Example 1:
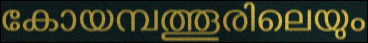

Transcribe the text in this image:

കോയമ്പത്തൂരിലെയും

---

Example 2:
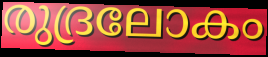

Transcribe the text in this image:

രുദ്രലോകം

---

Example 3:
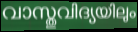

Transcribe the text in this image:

വാസ്തുവിദ്യയിലും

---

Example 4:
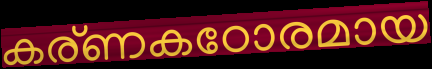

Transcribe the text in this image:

കര്ണകഠോരമായ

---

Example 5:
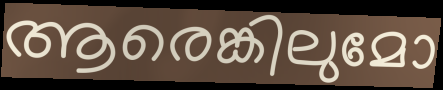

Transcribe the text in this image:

ആരെങ്കിലുമോ